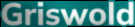
Griswold